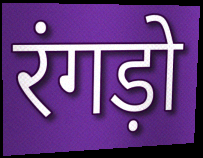
रंगड़ो